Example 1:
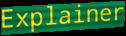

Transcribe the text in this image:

Explainer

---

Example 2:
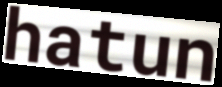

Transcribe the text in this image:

hatun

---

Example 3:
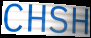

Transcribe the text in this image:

CHSH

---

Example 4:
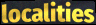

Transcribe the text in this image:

localities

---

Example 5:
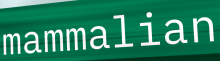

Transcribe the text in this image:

mammalian